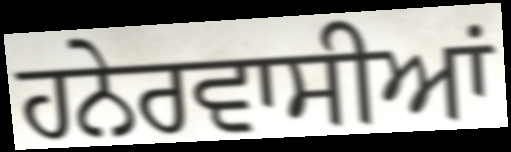
ਹਨੇਰਵਾਸੀਆਂ